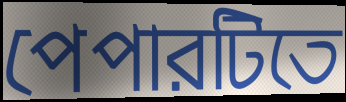
পেপারটিতে